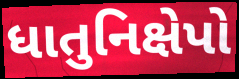
ધાતુનિક્ષેપો